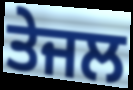
ਤੇਜਲ